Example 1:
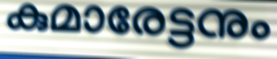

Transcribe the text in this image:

കുമാരേട്ടനും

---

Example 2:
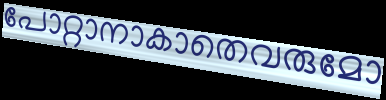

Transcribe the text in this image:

പോറ്റാനാകാതെവരുമോ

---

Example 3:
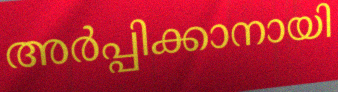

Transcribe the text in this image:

അർപ്പിക്കാനായി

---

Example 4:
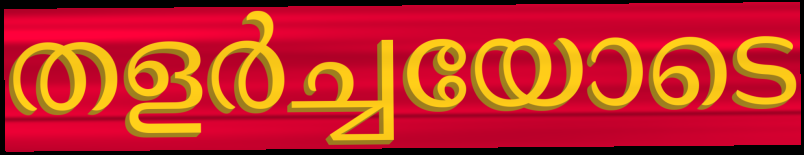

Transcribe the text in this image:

തളർച്ചയോടെ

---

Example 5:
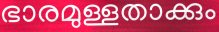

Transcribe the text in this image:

ഭാരമുള്ളതാക്കും